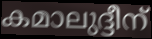
കമാലുദ്ദീന്